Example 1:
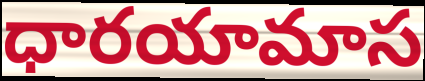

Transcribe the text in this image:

ధారయామాస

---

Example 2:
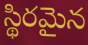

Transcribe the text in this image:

స్థిరమైన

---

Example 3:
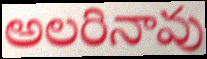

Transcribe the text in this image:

అలరినావు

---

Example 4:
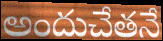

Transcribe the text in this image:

అందుచేతనే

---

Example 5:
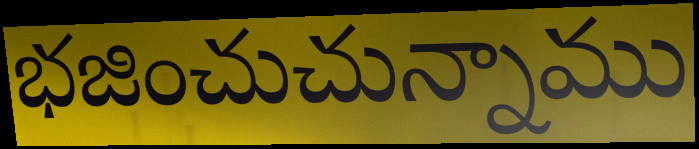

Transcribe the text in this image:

భజించుచున్నాము